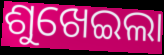
ଶୁଖେଇଲା